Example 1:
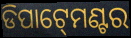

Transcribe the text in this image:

ଡିପାଟ୍‍ମେଣ୍ଟର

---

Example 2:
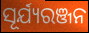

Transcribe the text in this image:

ସୂର୍ଯ୍ୟରଞ୍ଜନ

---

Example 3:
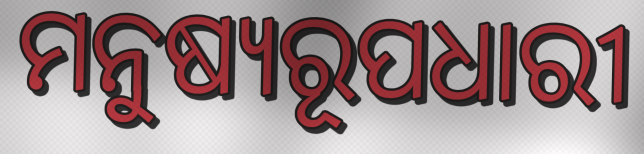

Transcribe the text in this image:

ମନୁଷ୍ୟରୂପଧାରୀ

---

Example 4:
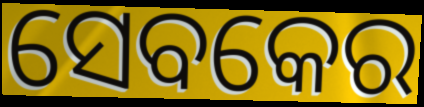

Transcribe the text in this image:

ସେବକେର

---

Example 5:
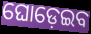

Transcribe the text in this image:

ଘୋଡ଼େଇବ